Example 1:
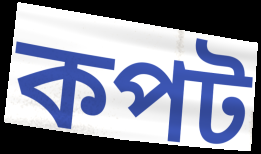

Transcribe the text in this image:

কপট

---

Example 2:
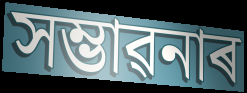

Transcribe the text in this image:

সম্ভাৱনাৰ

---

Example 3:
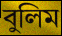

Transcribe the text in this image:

বুলিম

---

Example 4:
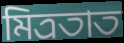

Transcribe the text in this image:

মিত্ৰতাত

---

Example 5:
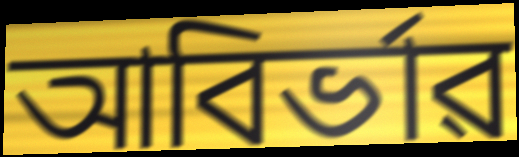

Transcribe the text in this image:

আবিৰ্ভাৱ